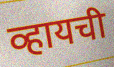
व्हायची